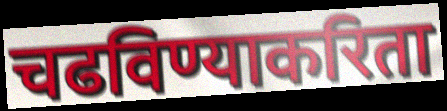
चढविण्याकरिता